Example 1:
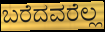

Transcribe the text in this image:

ಬರೆದವರೆಲ್ಲ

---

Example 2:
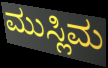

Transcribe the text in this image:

ಮುಸ್ಲಿಮ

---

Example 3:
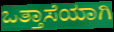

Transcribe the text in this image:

ಒತ್ತಾಸೆಯಾಗಿ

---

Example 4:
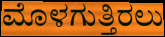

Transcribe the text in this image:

ಮೊಳಗುತ್ತಿರಲು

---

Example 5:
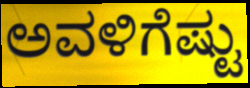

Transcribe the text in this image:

ಅವಳಿಗೆಷ್ಟು